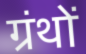
ग्रंथों